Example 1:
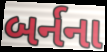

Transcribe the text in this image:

બર્નના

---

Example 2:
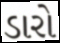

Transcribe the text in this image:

ડારો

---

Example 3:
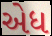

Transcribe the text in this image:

એધ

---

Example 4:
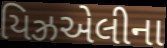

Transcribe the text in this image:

યિઝ્રએલીના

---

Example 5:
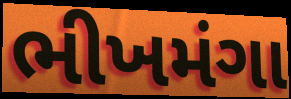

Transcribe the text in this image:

ભીખમંગા